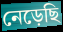
নেড়েছি